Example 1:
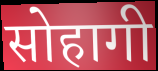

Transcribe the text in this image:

सोहागी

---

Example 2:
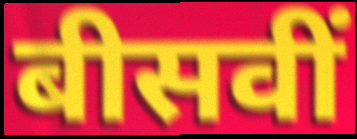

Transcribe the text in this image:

बीसवीं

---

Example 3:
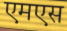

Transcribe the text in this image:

एमएस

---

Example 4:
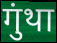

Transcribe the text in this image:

गुंथा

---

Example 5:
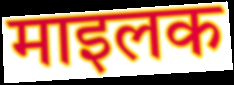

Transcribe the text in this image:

माइलक